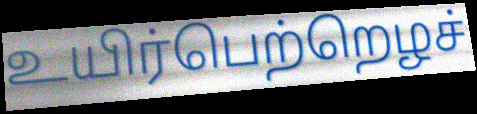
உயிர்பெற்றெழச்